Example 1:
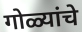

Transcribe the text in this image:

गोळ्यांचे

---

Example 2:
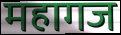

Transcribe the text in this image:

महागज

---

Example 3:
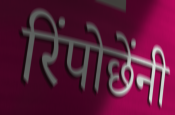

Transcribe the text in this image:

रिंपोछेंनी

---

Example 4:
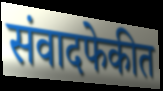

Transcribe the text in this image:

संवादफेकीत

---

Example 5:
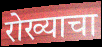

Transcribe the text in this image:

रोख्याचा